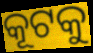
କୂଟକୁ